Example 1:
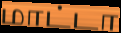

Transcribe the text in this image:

மாட்டா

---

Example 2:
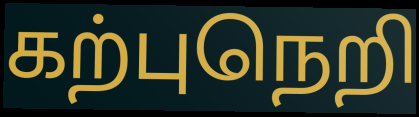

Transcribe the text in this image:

கற்புநெறி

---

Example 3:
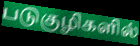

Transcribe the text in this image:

படுகுழிகளில்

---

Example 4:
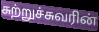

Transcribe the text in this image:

சுற்றுச்சுவரின்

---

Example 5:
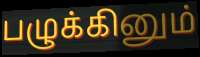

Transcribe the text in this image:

பழுக்கினும்